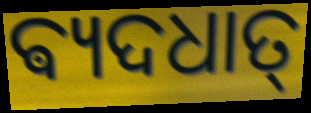
ଵ୍ୟଦଧାତ୍